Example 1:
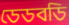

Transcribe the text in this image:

ডেডবডি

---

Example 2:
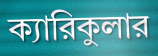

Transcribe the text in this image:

ক্যারিকুলার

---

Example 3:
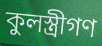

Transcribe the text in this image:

কুলস্ত্রীগণ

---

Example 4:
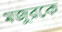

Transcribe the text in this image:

মজুরকে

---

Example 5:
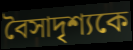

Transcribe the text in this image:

বৈসাদৃশ্যকে